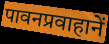
पावनप्रवाहानें